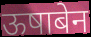
ऊषाबेन